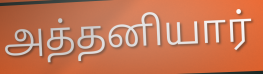
அத்தனியார்